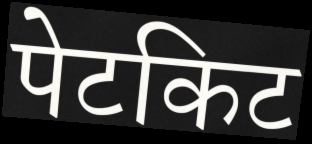
पेटकिट